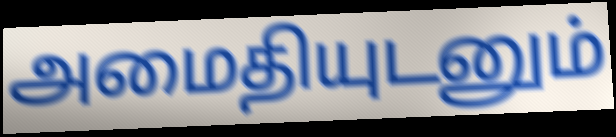
அமைதியுடனும்